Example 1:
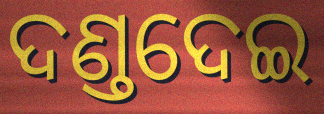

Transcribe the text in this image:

ଦଣ୍ଡଦେଇ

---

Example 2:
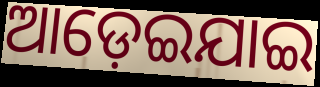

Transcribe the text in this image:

ଆଡ଼େଇଯାଇ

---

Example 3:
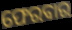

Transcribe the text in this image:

ଫେରବାର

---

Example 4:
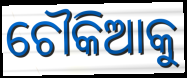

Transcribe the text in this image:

ଚୌକିଆକୁ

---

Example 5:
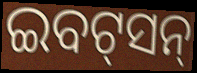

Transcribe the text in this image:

ଇବଟ୍‌ସନ୍